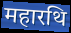
महारथि